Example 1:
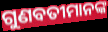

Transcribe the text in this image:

ଗୁଣବତୀମାନଙ୍କ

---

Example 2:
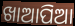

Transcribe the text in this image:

ଖାଆପିଆ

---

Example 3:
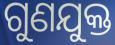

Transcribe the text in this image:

ଗୁଣଯୁକ୍ତ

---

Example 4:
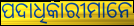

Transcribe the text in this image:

ପଦାଧିକାରୀମାନେ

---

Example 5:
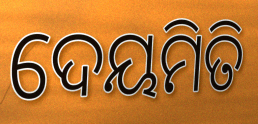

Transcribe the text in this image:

ଦେୟମିତି